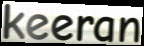
keeran